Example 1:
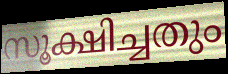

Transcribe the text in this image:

സൂക്ഷിച്ചതും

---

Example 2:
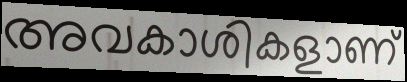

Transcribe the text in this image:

അവകാശികളാണ്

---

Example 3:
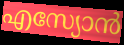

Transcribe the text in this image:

എസ്യോൻ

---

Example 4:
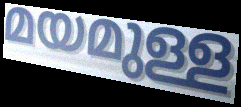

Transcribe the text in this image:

മയമുള്ള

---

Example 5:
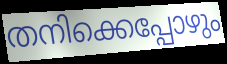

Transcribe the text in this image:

തനിക്കെപ്പോഴും